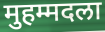
मुहम्मदला